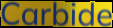
Carbide